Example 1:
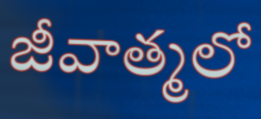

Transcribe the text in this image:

జీవాత్మలో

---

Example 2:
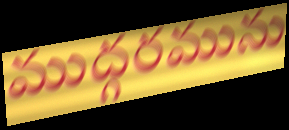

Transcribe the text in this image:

ముద్గరమును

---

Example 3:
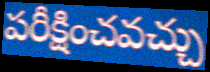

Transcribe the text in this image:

పరీక్షించవచ్చు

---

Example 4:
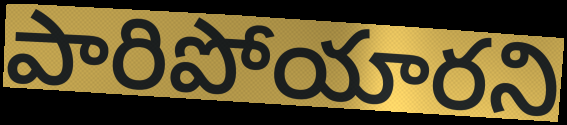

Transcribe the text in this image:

పారిపోయారని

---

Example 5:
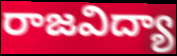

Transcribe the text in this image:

రాజవిద్యా